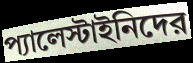
প্যালেস্টাইনিদের